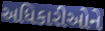
અધિકારીઓને